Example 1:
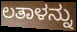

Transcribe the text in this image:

ಲತಾಳನ್ನು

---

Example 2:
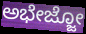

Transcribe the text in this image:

ಅಭೇಜ್ಜೋ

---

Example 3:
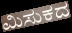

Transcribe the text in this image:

ಮಿಸುಕದ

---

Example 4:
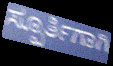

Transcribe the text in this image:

ಸ್ಪೂರ್ತಿಗಾಗಿ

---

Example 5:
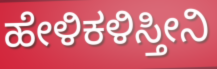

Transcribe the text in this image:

ಹೇಳಿಕಳಿಸ್ತೀನಿ